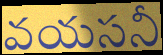
వయసనీ